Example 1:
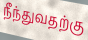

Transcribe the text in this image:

நீந்துவதற்கு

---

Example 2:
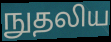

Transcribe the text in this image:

நுதலிய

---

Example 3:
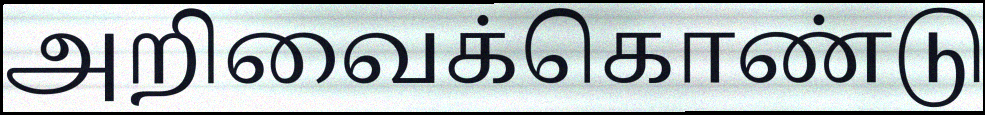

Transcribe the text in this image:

அறிவைக்கொண்டு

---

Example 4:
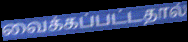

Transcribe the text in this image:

வைக்கப்பட்டதால்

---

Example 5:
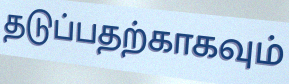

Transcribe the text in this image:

தடுப்பதற்காகவும்